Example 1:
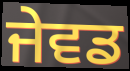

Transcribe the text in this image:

ਜੇਵਡ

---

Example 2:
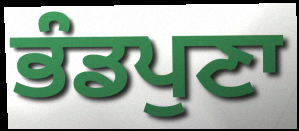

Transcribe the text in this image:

ਭੰਡਪੁਣਾ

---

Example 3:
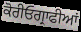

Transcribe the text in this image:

ਕੋਰੀਓਗ੍ਰਾਫੀਆਂ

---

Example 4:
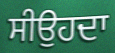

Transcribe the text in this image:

ਸੀਉਹਦਾ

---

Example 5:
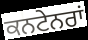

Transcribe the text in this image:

ਕਨਟੇਨਰਾਂ